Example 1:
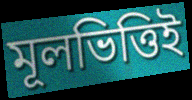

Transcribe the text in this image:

মূলভিত্তিই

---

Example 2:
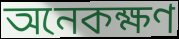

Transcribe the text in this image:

অনেকক্ষণ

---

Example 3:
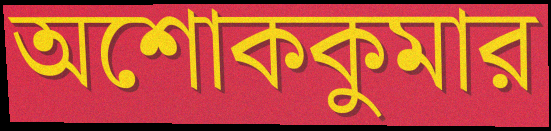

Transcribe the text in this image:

অশোককুমার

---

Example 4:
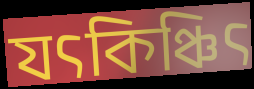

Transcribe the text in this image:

যৎকিঞ্চিৎ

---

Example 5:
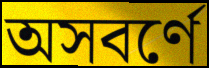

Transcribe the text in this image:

অসবর্ণে